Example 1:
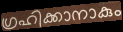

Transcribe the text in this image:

ഗ്രഹിക്കാനാകും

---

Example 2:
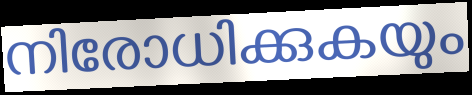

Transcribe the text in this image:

നിരോധിക്കുകയും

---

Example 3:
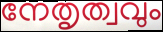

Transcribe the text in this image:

നേതൃത്വവും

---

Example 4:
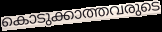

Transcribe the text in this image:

കൊടുക്കാത്തവരുടെ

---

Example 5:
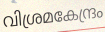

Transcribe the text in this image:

വിശ്രമകേന്ദ്രം